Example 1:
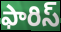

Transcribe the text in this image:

ఫారిస్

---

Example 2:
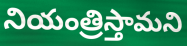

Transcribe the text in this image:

నియంత్రిస్తామని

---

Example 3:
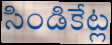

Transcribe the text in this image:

సిండికేట్ల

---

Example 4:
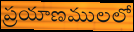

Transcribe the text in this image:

ప్రయాణములలో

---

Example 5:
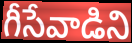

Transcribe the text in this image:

గీసేవాడిని